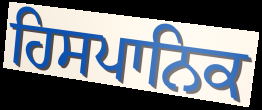
ਹਿਸਪਾਨਿਕ